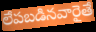
లేపబడినవారైతే